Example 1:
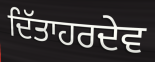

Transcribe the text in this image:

ਦਿੱਤਾਹਰਦੇਵ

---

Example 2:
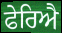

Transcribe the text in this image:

ਫੇਰਿਐ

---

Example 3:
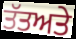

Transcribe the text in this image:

ਤੱਤਅਤੇ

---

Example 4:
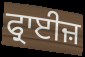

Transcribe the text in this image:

ਫ੍ਰਾਈਜ਼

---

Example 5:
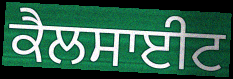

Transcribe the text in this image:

ਕੈਲਸਾਈਟ